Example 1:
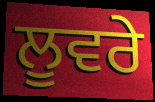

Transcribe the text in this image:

ਲੂਵਰੇ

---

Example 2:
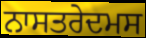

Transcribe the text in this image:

ਨਾਸਤਰੇਦਮਸ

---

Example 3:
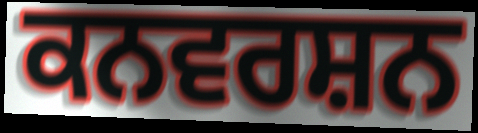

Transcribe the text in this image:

ਕਨਵਰਸ਼ਨ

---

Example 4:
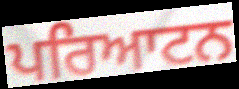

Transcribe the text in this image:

ਪਰਿਆਟਨ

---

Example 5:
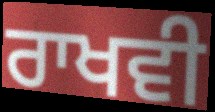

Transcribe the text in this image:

ਰਾਖਵੀ